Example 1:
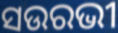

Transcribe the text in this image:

ସଉରଭୀ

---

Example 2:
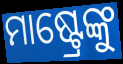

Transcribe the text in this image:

ମାଷ୍ଟ୍ରେଙ୍କୁ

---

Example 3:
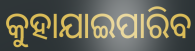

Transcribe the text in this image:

କୁହାଯାଇପାରିବ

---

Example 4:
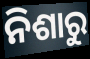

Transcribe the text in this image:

ନିଶାରୁ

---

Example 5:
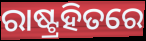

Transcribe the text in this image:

ରାଷ୍ଟ୍ରହିତରେ